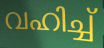
വഹിച്ച്